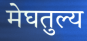
मेघतुल्य